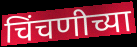
चिंचणीच्या